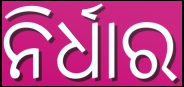
ନିର୍ଧାର